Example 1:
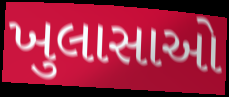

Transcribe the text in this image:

ખુલાસાઓ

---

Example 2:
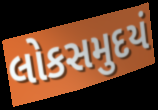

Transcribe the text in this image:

લોકસમુદયં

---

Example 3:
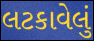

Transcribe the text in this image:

લટકાવેલું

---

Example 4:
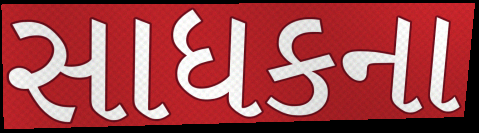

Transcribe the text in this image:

સાધકના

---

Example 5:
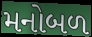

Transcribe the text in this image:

મનોબળ